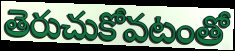
తెరుచుకోవటంతో